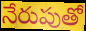
నేరుపుతో